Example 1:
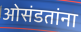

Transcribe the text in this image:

ओसंडतांना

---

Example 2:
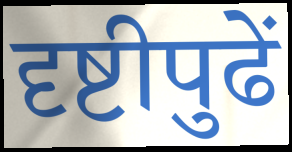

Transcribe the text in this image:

दृष्टीपुढें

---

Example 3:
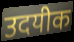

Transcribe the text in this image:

उदयीक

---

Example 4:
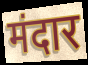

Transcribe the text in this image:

मंदार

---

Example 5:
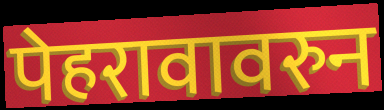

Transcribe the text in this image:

पेहरावावरुन